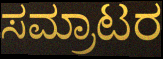
ಸಮ್ರಾಟರ